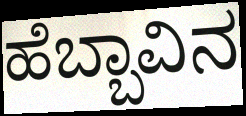
ಹೆಬ್ಬಾವಿನ